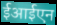
ईआईएन